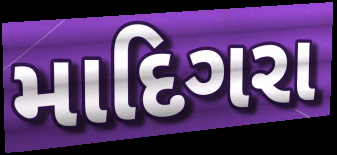
માદિગરા